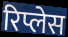
रिप्लेस